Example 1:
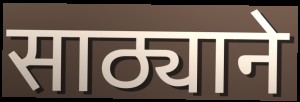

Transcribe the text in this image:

साठ्याने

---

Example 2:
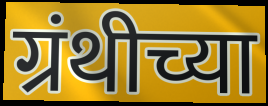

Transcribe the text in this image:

ग्रंथीच्या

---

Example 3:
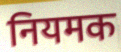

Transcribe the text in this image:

नियमक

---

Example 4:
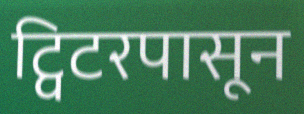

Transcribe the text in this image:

ट्विटरपासून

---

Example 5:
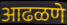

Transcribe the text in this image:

आढळणे